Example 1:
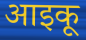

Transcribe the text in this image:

आइकू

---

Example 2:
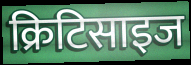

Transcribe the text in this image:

क्रिटिसाइज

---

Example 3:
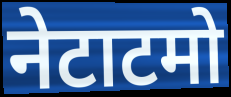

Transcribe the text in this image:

नेटाटमो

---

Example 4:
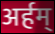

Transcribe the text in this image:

अर्हम्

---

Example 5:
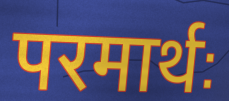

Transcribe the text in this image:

परमार्थः